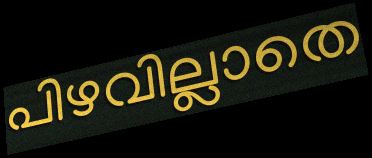
പിഴവില്ലാതെ